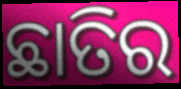
ଛାତିର